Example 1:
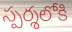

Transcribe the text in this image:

స్పర్శలోకి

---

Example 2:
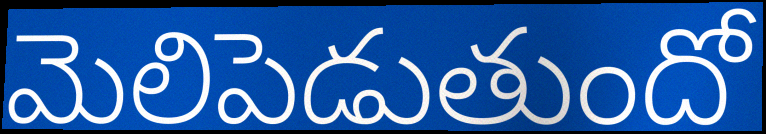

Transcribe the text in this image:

మెలిపెడుతుందో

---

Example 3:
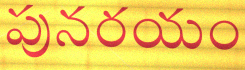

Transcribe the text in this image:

పునరయం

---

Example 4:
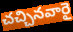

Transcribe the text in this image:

చచ్చినవారై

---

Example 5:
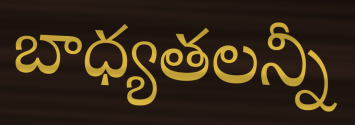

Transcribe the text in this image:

బాధ్యతలన్నీ